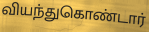
வியந்துகொண்டார்